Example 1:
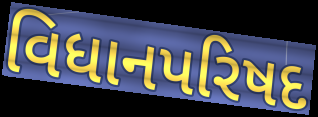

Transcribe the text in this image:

વિધાનપરિષદ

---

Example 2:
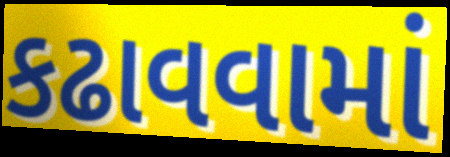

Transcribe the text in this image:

કઢાવવામાં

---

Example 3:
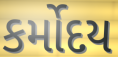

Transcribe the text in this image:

કર્મોદય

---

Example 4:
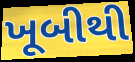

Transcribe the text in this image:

ખૂબીથી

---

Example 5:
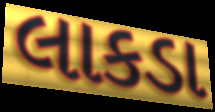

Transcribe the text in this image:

લાકડા